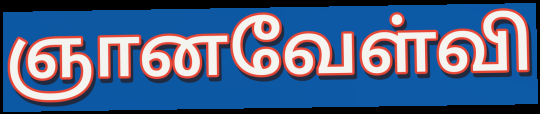
ஞானவேள்வி